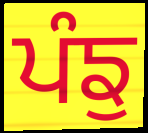
ਪੰਙੁ